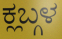
ಕ್ಲಬ್ಗಳ